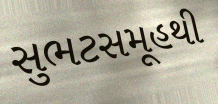
સુભટસમૂહથી